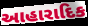
આહારાદિક